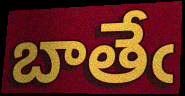
బాతేఁ